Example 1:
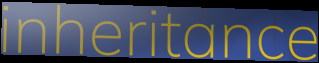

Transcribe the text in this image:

inheritance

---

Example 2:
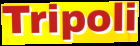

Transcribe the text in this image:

Tripoli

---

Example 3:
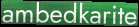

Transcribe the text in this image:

ambedkarite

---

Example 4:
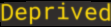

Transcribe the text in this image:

Deprived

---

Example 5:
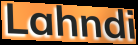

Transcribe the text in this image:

Lahndi